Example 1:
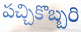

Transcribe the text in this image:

పచ్చికొబ్బరి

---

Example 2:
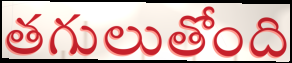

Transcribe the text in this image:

తగులుతోంది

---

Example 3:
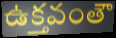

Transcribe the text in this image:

ఉక్తవంతౌ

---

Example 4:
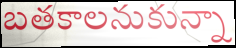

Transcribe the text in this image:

బతకాలనుకున్నా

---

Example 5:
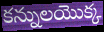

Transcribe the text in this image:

కన్నులయొక్క